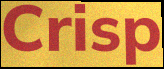
Crisp